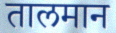
तालमान